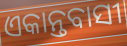
ଏକାନ୍ତବାସୀ